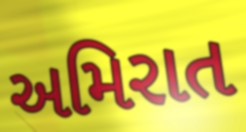
અમિરાત